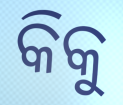
କିକୁ